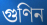
গুণিন